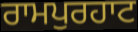
ਰਾਮਪੁਰਹਾਟ